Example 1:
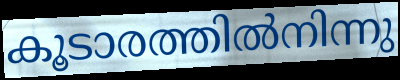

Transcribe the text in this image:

കൂടാരത്തിൽനിന്നു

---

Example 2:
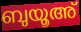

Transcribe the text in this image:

ബുയൂഅ്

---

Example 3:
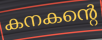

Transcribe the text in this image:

കനകന്റെ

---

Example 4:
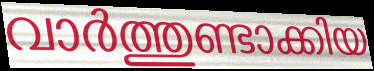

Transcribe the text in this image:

വാർത്തുണ്ടാക്കിയ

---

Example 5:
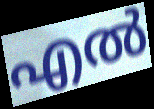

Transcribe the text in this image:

എൽ